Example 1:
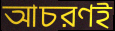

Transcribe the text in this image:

আচরণই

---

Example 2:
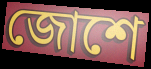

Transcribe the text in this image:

জোশে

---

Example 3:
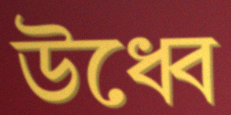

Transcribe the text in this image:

উধ্বে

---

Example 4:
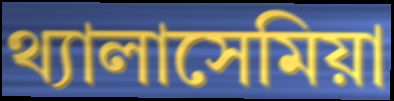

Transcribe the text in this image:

থ্যালাসেমিয়া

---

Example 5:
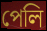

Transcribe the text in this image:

পেলি